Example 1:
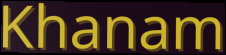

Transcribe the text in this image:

Khanam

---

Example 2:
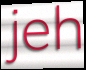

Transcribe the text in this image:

jeh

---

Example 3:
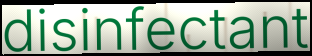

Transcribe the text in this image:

disinfectant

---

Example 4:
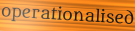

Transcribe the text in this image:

operationalised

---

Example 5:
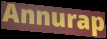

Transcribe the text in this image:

Annurap